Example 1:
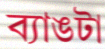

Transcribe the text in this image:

ব্যাঙটা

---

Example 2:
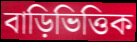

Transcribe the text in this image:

বাড়িভিত্তিক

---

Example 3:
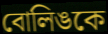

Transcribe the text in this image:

বোলিঙকে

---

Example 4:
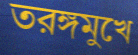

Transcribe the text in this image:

তরঙ্গমুখে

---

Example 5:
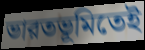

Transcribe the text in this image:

ভারতভূমিতেই